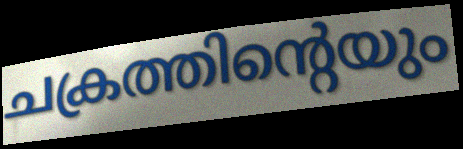
ചക്രത്തിന്റെയും